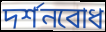
দর্শনবোধ